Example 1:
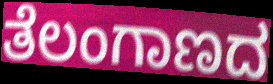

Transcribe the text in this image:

ತೆಲಂಗಾಣದ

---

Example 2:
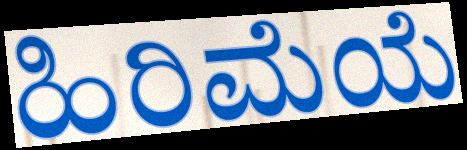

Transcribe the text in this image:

ಹಿರಿಮೆಯೆ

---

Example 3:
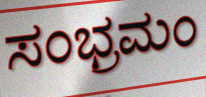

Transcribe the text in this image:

ಸಂಭ್ರಮಂ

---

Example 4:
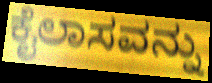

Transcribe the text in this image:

ಕೈಲಾಸವನ್ನು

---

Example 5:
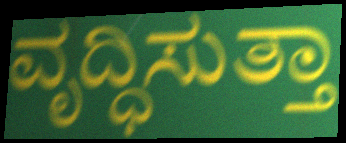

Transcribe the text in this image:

ವೃದ್ಧಿಸುತ್ತಾ